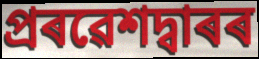
প্ৰৰৱেশদ্বাৰৰ